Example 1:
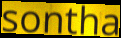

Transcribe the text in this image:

sontha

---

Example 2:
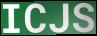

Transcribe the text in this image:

ICJS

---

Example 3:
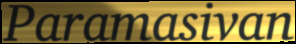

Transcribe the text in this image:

Paramasivan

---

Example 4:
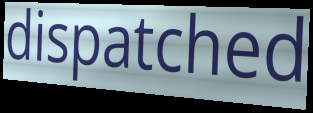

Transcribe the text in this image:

dispatched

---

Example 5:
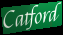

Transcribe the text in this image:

Catford